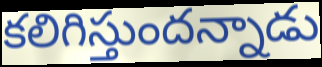
కలిగిస్తుందన్నాడు